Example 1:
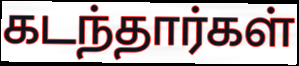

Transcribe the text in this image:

கடந்தார்கள்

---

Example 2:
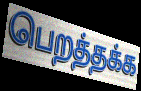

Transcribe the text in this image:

பெறத்தக்க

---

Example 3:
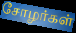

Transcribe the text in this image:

சோழர்கள்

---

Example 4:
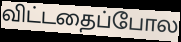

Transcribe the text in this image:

விட்டதைப்போல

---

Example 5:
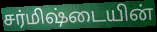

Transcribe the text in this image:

சர்மிஷ்டையின்